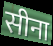
सीना